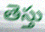
తెస్తు